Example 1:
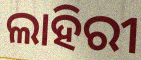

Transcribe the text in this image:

ଲାହିରୀ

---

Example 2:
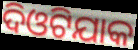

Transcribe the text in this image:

ଦିଓଟିଯାକ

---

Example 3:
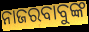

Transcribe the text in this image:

ନାଜରବାବୁଙ୍କ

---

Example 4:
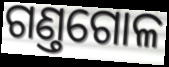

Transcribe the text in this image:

ଗଣ୍ତଗୋଳ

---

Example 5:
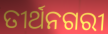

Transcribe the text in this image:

ତୀର୍ଥନଗରୀ